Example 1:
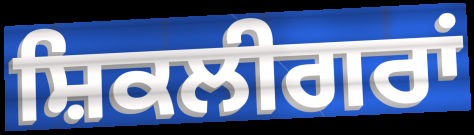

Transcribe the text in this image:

ਸ਼ਿਕਲੀਗਰਾਂ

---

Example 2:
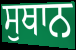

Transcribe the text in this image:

ਸੁਥਾਨ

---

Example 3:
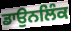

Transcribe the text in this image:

ਡਾਉਨਲਿੰਕ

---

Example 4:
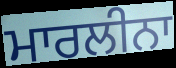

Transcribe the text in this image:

ਮਾਰਲੀਨਾ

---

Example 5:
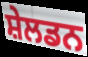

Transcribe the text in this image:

ਸ਼ੇਲਡਨ